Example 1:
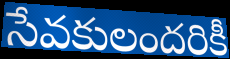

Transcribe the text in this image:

సేవకులందరికీ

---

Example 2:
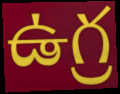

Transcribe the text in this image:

ఉగ్ర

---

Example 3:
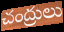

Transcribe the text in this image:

చంద్రులు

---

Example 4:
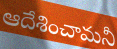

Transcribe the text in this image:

ఆదేశించామనీ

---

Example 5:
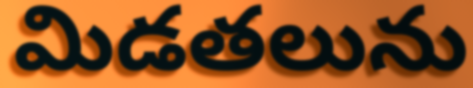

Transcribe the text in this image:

మిడతలును